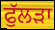
ਫੁੱਲੜਾ